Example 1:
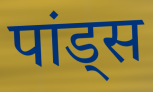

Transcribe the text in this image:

पांड्स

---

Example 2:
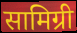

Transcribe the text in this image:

सामिग्री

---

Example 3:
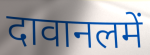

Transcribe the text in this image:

दावानलमें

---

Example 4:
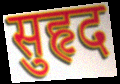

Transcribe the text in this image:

सुहृद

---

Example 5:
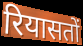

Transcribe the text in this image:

रियासतों